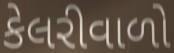
કેલરીવાળો